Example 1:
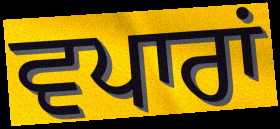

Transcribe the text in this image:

ਵਪਾਰਾਂ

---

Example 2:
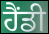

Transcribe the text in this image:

ਹੈਂਡੀ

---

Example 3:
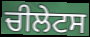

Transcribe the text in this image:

ਚੀਲੇਟਸ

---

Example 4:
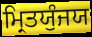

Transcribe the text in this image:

ਮ੍ਰਿਤਯੁੰਜਯ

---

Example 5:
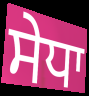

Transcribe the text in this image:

ਸੇਧਾ